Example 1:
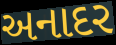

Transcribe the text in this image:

અનાદર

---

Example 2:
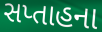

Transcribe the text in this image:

સપ્તાહના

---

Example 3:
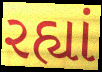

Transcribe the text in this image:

રહ્યાં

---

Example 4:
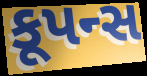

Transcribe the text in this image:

કૂપન્સ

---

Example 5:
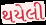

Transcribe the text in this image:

થયેલી